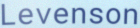
Levenson